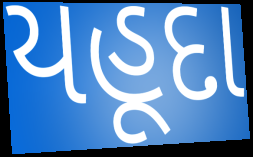
યહૂદા